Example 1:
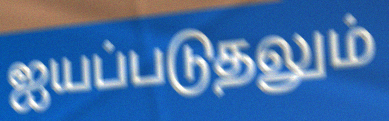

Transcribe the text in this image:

ஐயப்படுதலும்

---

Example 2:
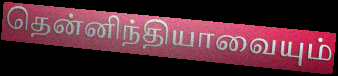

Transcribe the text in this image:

தென்னிந்தியாவையும்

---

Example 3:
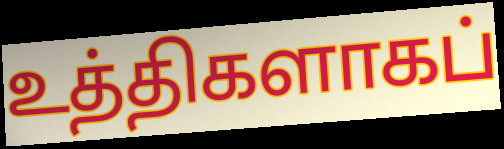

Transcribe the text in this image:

உத்திகளாகப்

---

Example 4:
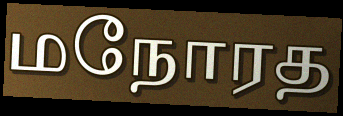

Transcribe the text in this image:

மநோரத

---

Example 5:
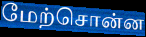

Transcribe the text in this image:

மேற்சொன்ன